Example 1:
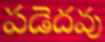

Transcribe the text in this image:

పడెదవు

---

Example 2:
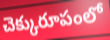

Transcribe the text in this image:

చెక్కురూపంలో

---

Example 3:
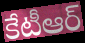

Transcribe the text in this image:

కేటీఆర్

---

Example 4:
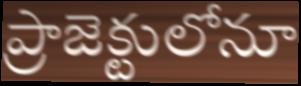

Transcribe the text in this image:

ప్రాజెక్టులోనూ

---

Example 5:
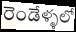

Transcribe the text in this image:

రెండేళ్ళలో